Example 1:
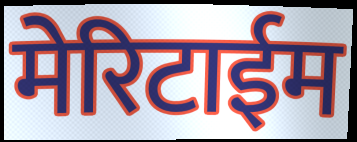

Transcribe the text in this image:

मेरिटाईम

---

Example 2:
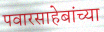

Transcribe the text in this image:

पवारसाहेबांच्या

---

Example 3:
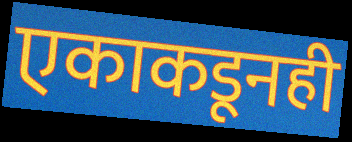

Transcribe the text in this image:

एकाकडूनही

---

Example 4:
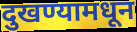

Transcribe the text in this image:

दुखण्यामधून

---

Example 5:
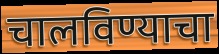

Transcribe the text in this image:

चालविण्याचा